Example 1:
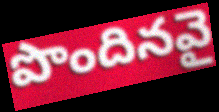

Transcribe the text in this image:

పొందినవై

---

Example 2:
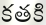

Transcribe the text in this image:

కతకి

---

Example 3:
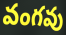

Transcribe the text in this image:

వంగవు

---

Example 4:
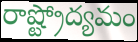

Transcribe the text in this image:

రాష్ట్రోద్యమం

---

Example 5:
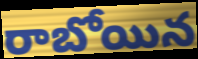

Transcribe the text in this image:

రాబోయిన